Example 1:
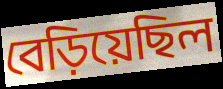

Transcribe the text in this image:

বেড়িয়েছিল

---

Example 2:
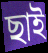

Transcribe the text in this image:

ছাই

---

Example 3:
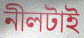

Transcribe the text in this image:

নীলটাই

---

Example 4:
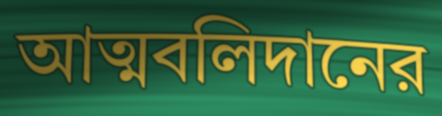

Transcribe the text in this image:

আত্মবলিদানের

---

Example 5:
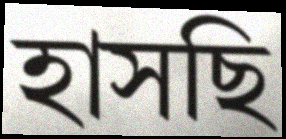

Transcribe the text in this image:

হাসছি